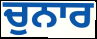
ਚੁਨਾਰ